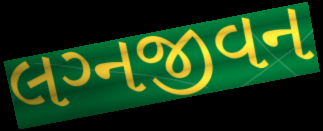
લગ્‍નજીવન